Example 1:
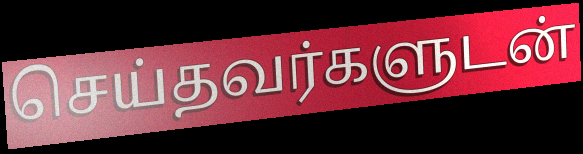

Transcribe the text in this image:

செய்தவர்களுடன்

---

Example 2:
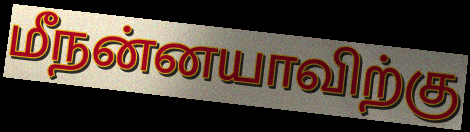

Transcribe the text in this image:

மீநன்னயாவிற்கு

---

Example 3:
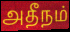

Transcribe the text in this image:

அதீநம்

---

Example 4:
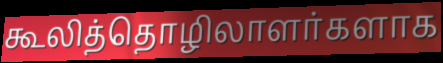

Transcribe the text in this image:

கூலித்தொழிலாளர்களாக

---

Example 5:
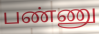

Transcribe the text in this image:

பண்ணு